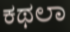
ಕಥಲಾ